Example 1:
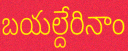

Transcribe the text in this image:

బయల్దేరినాం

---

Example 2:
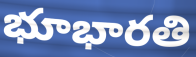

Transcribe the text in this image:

భూభారతి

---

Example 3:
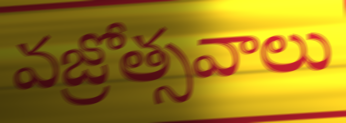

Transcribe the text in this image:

వజ్రోత్సవాలు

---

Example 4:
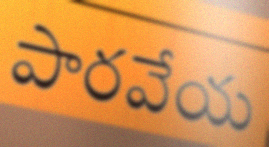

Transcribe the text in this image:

పారవేయ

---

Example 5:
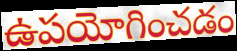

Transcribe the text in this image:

ఉపయోగించడం